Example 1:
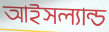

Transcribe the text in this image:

আইসল্যান্ড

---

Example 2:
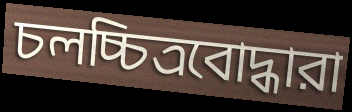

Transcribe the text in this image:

চলচ্চিত্রবোদ্ধারা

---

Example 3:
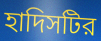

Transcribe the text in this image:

হাদিসটির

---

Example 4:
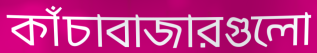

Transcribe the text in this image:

কাঁচাবাজারগুলো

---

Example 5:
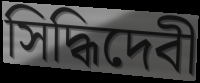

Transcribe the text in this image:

সিদ্ধিদেবী